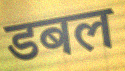
डबल